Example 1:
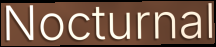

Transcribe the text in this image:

Nocturnal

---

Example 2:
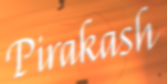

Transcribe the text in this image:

Pirakash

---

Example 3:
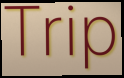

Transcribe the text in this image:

Trip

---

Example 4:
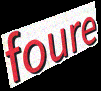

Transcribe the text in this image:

foure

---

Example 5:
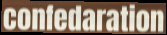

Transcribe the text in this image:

confedaration